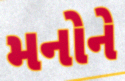
મનોને